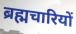
ब्रह्मचारियों